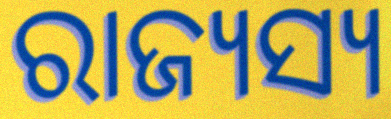
ରାଜ୍ୟସ୍ୟ